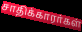
சாதிக்காரர்கள்